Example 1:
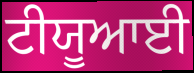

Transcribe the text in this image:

ਟੀਯੂਆਈ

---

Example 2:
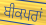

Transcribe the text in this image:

ਬੀਕਪਰਾਂ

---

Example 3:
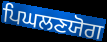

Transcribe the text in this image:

ਪਿਘਲਣਯੋਗ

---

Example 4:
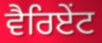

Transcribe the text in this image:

ਵੈਰਿਏਂਟ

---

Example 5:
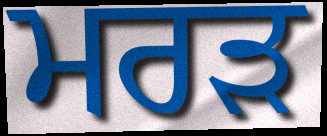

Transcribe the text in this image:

ਮਰੜ